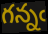
గన్నఁ